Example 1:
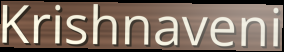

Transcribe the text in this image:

Krishnaveni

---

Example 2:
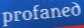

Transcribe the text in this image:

profaned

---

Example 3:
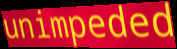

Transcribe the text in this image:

unimpeded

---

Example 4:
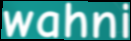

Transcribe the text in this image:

wahni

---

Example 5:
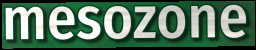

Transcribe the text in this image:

mesozone